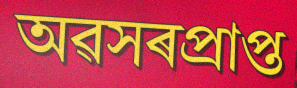
অৱসৰপ্ৰাপ্ত